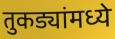
तुकड्यांमध्ये